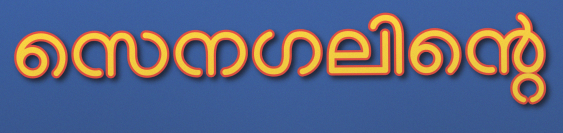
സെനഗലിന്റെ